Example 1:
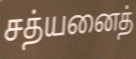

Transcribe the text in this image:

சத்யனைத்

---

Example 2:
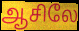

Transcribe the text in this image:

ஆசிலே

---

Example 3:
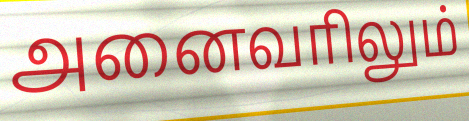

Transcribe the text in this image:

அனைவரிலும்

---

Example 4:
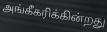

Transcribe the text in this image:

அங்கீகரிக்கின்றது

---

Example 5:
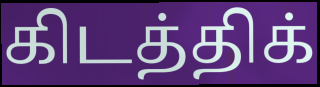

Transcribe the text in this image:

கிடத்திக்